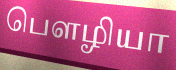
பௌழியா